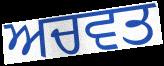
ਅਚਵਤ